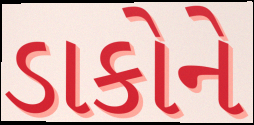
ડાકોને